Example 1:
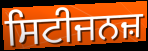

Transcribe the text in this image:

ਸਿਟੀਜਨਜ਼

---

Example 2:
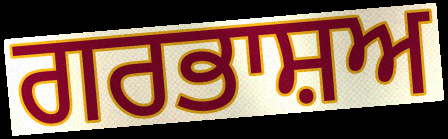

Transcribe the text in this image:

ਗਰਭਾਸ਼ਅ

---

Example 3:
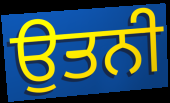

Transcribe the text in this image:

ਉਤਨੀ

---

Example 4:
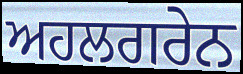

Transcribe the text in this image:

ਅਹਲਗਰੇਨ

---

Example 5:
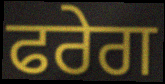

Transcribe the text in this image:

ਫਰੇਗ